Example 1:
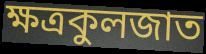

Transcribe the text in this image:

ক্ষত্রকুলজাত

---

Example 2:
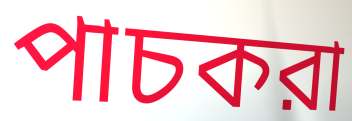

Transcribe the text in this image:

পাচকরা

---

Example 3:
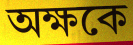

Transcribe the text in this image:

অক্ষকে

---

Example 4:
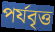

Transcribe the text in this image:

পর্যবৃত্ত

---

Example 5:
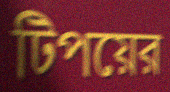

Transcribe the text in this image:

টিপয়ের